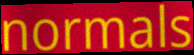
normals